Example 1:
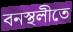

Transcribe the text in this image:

বনস্থলীতে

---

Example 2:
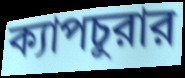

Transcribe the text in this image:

ক্যাপচুরার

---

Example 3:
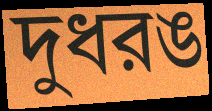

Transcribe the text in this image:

দুধরঙ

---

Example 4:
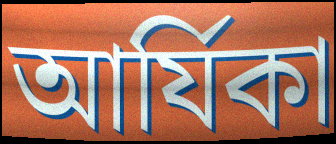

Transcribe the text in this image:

আর্যিকা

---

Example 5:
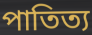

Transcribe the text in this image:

পাতিত্য